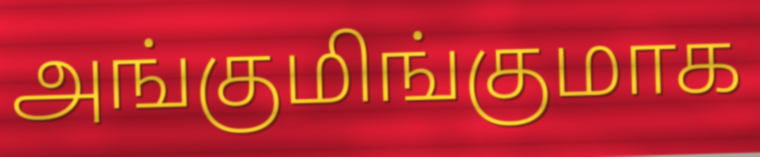
அங்குமிங்குமாக